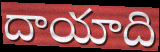
దాయాది